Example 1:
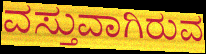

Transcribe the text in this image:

ವಸ್ತುವಾಗಿರುವ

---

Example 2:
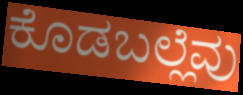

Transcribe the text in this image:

ಕೊಡಬಲ್ಲೆವು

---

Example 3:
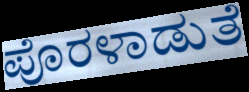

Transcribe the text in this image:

ಪೊರಳಾಡುತೆ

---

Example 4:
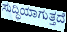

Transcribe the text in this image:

ಸುದ್ಧಿಯಾಗುತ್ತದೆ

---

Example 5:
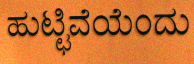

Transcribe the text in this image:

ಹುಟ್ಟಿವೆಯೆಂದು